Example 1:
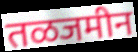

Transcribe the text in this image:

तळजमीन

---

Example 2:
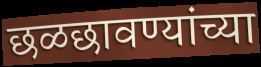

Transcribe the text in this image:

छळछावण्यांच्या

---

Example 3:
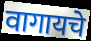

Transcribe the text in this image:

वागायचे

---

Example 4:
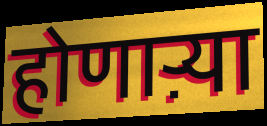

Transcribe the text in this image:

होणाऱ्‍या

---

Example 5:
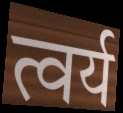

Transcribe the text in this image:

त्वर्य